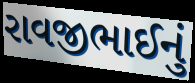
રાવજીભાઈનું